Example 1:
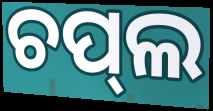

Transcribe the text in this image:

ଚପ୍‌ଲ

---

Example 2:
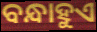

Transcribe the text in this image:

ବନ୍ଧାହୁଏ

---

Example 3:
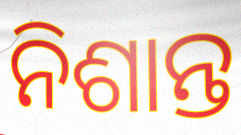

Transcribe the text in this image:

ନିଶାନ୍ତ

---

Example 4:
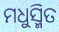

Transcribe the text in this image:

ମଧୁସ୍ମିତ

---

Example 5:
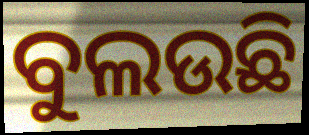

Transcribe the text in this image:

ବୁଲଉଛି